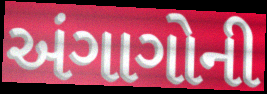
અંગાગોની